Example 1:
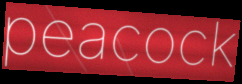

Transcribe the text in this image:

peacock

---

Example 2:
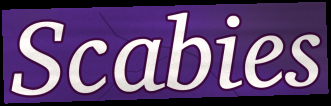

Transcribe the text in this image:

Scabies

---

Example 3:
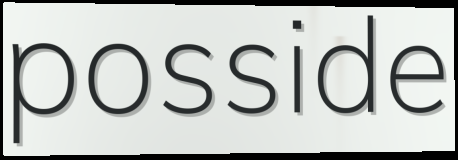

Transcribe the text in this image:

posside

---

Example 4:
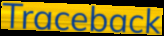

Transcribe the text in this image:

Traceback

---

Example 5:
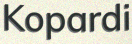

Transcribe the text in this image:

Kopardi